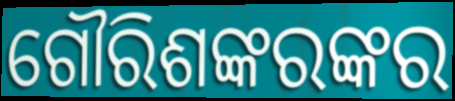
ଗୌରିଶଙ୍କରଙ୍କର